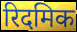
रिदमिक